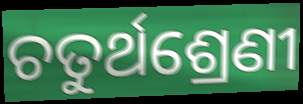
ଚତୁର୍ଥଶ୍ରେଣୀ